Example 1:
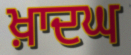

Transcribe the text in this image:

ਖ਼ਾਦਘ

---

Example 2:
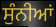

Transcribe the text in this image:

ਸੁੰਨੀਆਂ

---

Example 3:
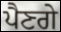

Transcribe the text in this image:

ਪੈਣਗੇ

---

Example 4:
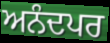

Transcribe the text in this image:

ਅਨੰਦਪਰ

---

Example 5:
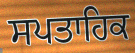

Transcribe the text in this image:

ਸਪਤਾਹਿਕ